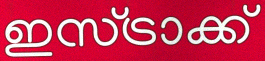
ഇസ്ട്രാക്ക്